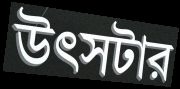
উৎসটার